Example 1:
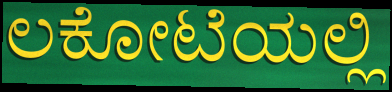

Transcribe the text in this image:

ಲಕೋಟೆಯಲ್ಲಿ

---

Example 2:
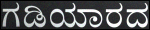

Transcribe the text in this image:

ಗಡಿಯಾರದ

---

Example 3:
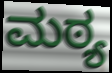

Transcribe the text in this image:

ಮಠ್ಯ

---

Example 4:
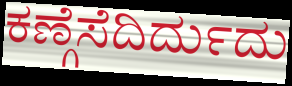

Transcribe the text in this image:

ಕಣ್ಗೆಸೆದಿರ್ದುದು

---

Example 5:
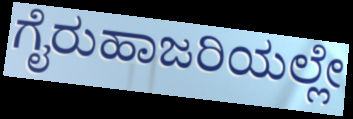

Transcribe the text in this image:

ಗೈರುಹಾಜರಿಯಲ್ಲೇ